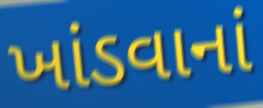
ખાંડવાનાં